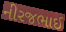
નીરજભાઈ